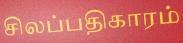
சிலப்பதிகாரம்